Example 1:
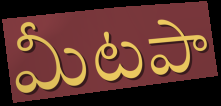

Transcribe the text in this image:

మీటపా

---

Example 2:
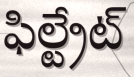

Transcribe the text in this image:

ఫిల్ట్రేట్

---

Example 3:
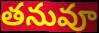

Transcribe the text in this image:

తనువూ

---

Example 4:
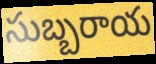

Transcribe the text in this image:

సుబ్బరాయ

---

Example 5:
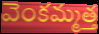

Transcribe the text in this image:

వెంకమ్మత్త